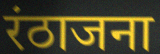
रंठाजना